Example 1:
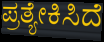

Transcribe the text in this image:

ಪ್ರತ್ಯೇಕಿಸಿದೆ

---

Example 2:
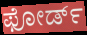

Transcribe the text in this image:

ಫೋರ್ಡ್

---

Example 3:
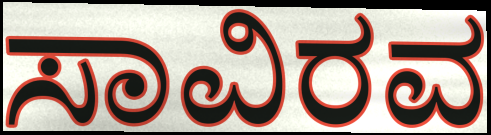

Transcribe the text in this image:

ಸಾವಿರವ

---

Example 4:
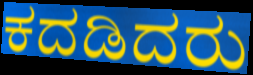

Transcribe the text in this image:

ಕದಡಿದರು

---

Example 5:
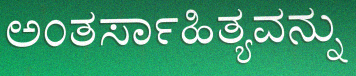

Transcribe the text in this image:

ಅಂತರ್ಸಾಹಿತ್ಯವನ್ನು